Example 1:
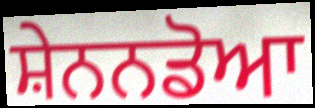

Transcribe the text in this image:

ਸ਼ੇਨਨਡੋਆ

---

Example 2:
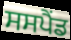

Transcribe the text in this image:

ਸਸਪੈੰਡ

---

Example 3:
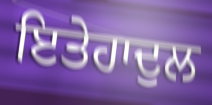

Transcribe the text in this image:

ਇਤੇਹਾਦੁਲ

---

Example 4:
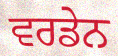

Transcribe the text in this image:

ਵਰਡੇਨ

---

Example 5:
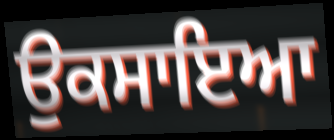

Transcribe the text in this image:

ਉਕਸਾਇਆ